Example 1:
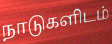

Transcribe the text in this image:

நாடுகளிடம்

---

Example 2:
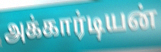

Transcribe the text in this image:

அக்கார்டியன்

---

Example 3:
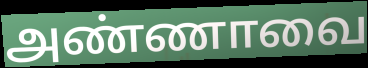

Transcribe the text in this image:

அண்ணாவை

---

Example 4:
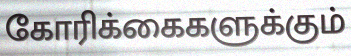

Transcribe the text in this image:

கோரிக்கைகளுக்கும்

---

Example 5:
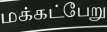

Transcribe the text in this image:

மக்கட்பேறு